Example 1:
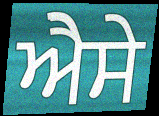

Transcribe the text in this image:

ਐੇਸੇ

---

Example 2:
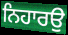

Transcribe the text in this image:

ਨਿਹਾਰਉ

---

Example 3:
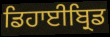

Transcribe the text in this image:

ਡਿਹਾਈਬ੍ਰਿਡ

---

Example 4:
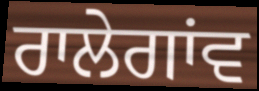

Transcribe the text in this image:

ਰਾਲੇਗਾਂਵ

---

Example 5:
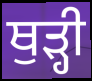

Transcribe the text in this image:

ਥੁੜ੍ਹੀ